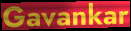
Gavankar